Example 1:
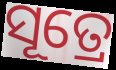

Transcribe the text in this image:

ସୂତ୍ରେ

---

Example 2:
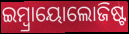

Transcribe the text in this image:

ଇମ୍ବ୍ରାୟୋଲୋଜିଷ୍ଟ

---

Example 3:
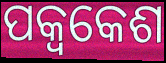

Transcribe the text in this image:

ପକ୍ଵକେଶ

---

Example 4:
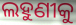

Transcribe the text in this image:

ଲହୁଣୀକୁ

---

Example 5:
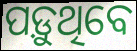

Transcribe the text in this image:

ପଡ଼ୁଥିବେ